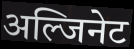
अल्जिनेट